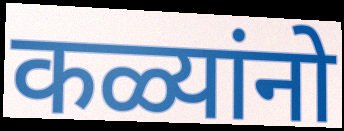
कळ्यांनो